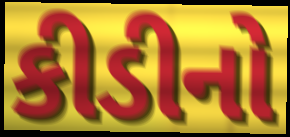
કીડીનો